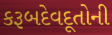
કરૂબદેવદૂતોની